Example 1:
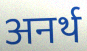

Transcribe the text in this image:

अनर्थ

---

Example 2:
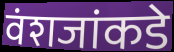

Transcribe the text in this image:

वंशजांकडे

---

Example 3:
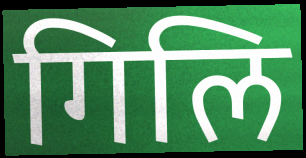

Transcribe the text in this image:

गिलि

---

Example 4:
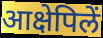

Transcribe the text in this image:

आक्षेपिलें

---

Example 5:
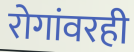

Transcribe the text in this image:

रोगांवरही